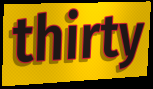
thirty